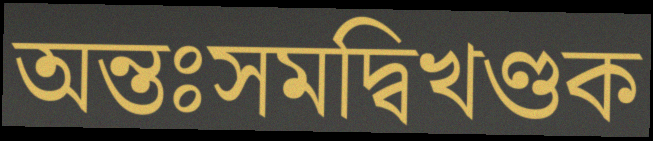
অন্তঃসমদ্বিখণ্ডক